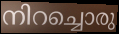
നിറച്ചൊരു